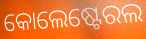
କୋଲେଷ୍ଟେରଲ